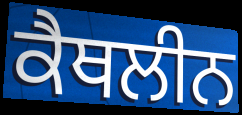
ਕੈਥਲੀਨ